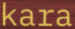
kara